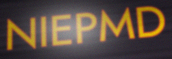
NIEPMD